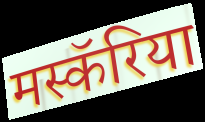
मस्कॅरिया